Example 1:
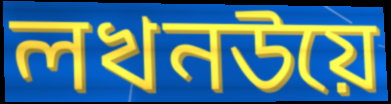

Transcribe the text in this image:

লখনউয়ে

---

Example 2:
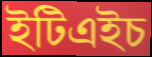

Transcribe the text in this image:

ইটিএইচ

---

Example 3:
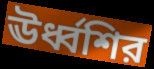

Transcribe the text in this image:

ঊর্ধ্বশির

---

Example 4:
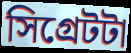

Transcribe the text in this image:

সিগ্রেটটা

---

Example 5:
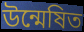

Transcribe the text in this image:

উন্মেষিত